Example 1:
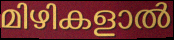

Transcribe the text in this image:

മിഴികളാൽ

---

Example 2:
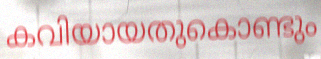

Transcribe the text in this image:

കവിയായതുകൊണ്ടും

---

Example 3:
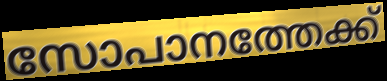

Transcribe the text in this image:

സോപാനത്തേക്ക്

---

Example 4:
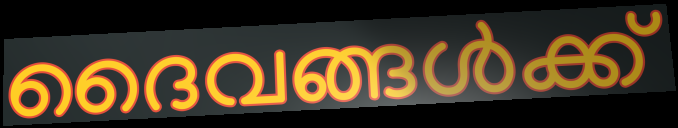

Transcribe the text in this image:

ദൈവങ്ങൾക്ക്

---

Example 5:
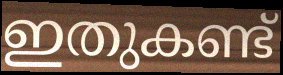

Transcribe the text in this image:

ഇതുകണ്ട്